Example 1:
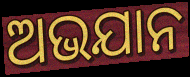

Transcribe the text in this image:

ଅଭଯାନ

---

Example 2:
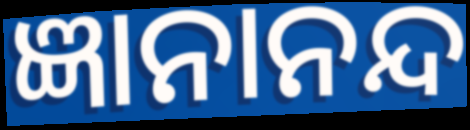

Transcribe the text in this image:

ଜ୍ଞାନାନନ୍ଦ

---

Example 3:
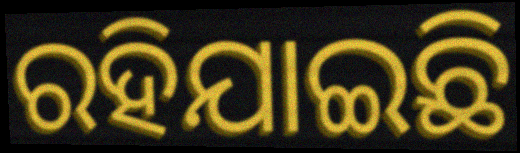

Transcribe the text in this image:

ରହିଯାଇଛି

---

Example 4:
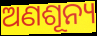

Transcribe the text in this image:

ଅଣଶୂନ୍ୟ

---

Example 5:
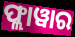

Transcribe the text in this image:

ଫ୍ଲାୱାର